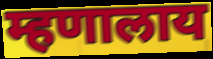
म्हणालाय